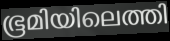
ഭൂമിയിലെത്തി